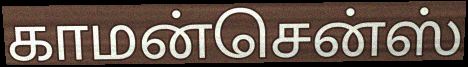
காமன்சென்ஸ்